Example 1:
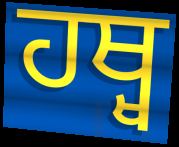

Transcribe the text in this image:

ਹਥ੍ਥ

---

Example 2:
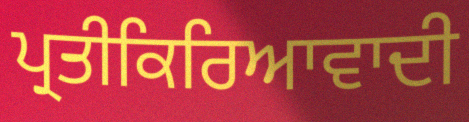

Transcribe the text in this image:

ਪ੍ਰਤੀਕਿਰਿਆਵਾਦੀ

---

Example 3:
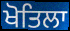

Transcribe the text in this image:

ਖੋਤਿਲਾ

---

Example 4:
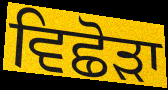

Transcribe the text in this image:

ਵਿਛੋੜਾ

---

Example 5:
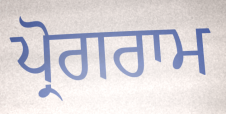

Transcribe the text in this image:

ਪ੍ਰੋਗਰਾਮ